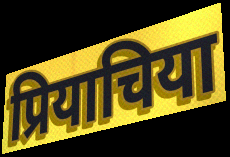
प्रियाचिया